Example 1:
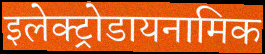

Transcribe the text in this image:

इलेक्ट्रोडायनामिक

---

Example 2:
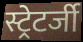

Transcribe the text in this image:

स्ट्रेटर्जी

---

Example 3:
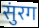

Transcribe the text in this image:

सुंरग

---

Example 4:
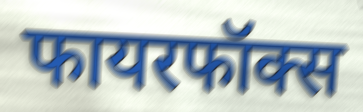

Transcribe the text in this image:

फायरफॉक्स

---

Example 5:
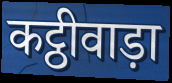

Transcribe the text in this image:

कट्ठीवाड़ा